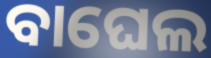
ବାଘେଲ